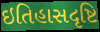
ઇતિહાસદૃષ્ટિ